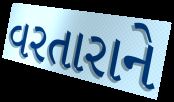
વરતારાને